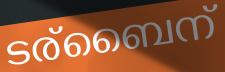
ടര്ബൈന്